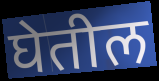
घेतील